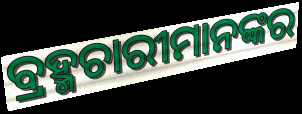
ବ୍ରହ୍ମଚାରୀମାନଙ୍କର